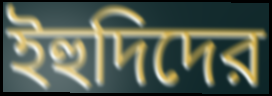
ইহুদিদের